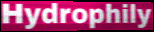
Hydrophily